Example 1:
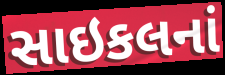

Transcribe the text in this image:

સાઇકલનાં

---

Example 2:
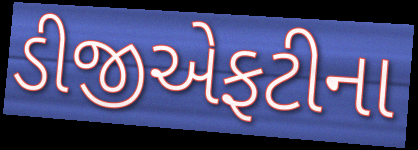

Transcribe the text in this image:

ડીજીએફટીના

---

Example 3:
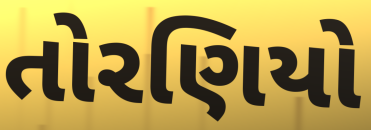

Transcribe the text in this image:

તોરણિયો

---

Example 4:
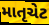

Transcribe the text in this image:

માતૃચેટ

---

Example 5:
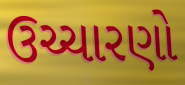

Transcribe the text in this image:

ઉચ્ચારણો